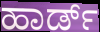
ಹಾರ್ಡ್